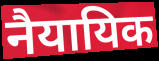
नैयायिक